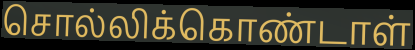
சொல்லிக்கொண்டாள்